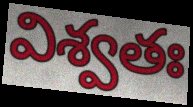
విశ్వతః